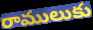
రాములుకు